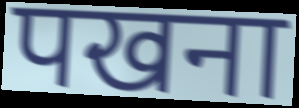
पखना